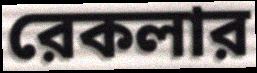
রেকলার